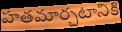
హతమార్చటానికి